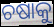
ଚଷାକୁ